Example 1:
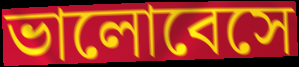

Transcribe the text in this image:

ভালোবেসে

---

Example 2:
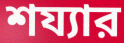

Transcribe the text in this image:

শয্যার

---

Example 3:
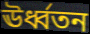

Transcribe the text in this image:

ঊর্ধ্বতন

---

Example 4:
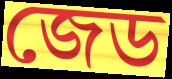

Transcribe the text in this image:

জেড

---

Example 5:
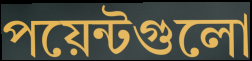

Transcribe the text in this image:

পয়েন্টগুলো